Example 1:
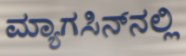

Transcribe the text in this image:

ಮ್ಯಾಗಸಿನ್‍ನಲ್ಲಿ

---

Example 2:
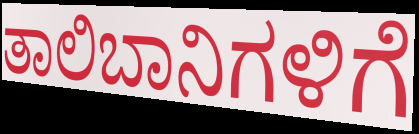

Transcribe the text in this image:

ತಾಲಿಬಾನಿಗಳಿಗೆ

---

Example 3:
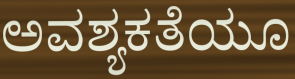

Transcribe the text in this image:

ಅವಶ್ಯಕತೆಯೂ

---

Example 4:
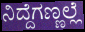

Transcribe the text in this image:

ನಿದ್ದೆಗಣ್ಣಲ್ಲೆ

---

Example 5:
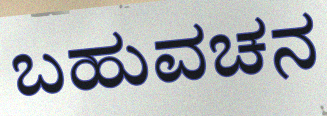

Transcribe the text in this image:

ಬಹುವಚನ